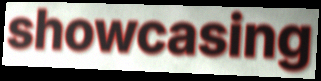
showcasing